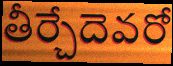
తీర్చేదెవరో